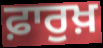
ਫ਼ਾਰੁਖ਼